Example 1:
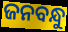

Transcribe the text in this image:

ଜନବନ୍ଧୁ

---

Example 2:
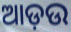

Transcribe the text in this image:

ଆଡ଼ଉ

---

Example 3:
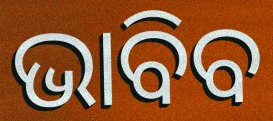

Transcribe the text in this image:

ଭାବିବ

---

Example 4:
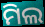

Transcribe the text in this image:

ମିଲ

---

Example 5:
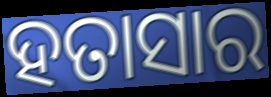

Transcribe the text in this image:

ହତାସାର